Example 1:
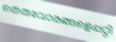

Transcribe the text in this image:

തെരുവോരങ്ങളെപ്പറ്റി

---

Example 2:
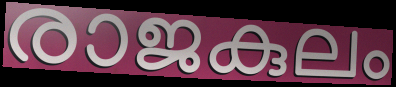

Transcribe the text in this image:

രാജകുലം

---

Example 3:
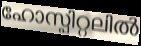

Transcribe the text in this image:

ഹോസ്പിറ്റലിൽ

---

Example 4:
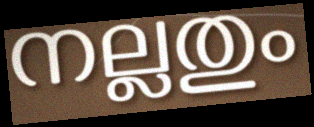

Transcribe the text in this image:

നല്ലതും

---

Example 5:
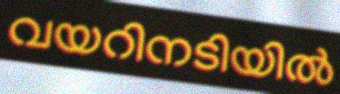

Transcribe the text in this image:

വയറിനടിയിൽ